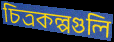
চিত্রকল্পগুলি